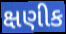
ક્ષણીક